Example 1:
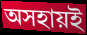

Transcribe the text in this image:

অসহায়ই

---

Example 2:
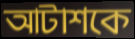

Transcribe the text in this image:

আটাশকে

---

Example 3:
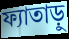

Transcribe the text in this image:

ফ্যাতাড়ু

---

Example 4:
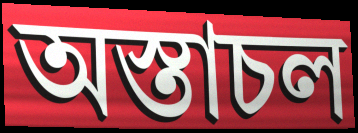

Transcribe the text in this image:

অস্তাচল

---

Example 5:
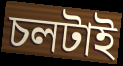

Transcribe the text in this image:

চলটাই